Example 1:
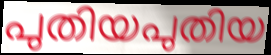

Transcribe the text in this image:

പുതിയപുതിയ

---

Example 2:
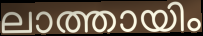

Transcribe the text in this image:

ലാത്തായിം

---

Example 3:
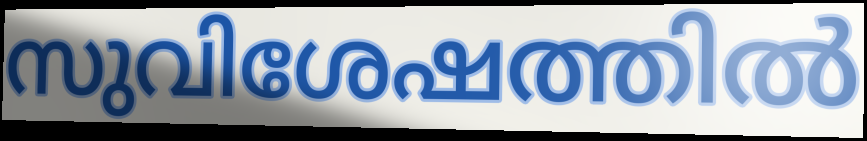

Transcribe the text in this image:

സുവിശേഷത്തിൽ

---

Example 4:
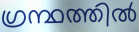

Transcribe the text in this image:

ഗ്രന്ഥത്തിൽ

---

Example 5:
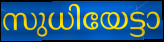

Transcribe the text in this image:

സുധിയേട്ടാ